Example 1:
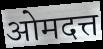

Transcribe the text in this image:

ओमदत्त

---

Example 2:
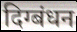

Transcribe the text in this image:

दिग्बंधन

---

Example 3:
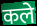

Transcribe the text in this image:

कले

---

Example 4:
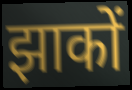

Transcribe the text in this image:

झाकों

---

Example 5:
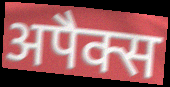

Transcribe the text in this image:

अपैक्स